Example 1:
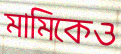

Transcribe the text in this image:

মামিকেও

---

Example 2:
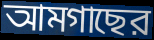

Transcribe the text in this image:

আমগাছের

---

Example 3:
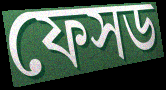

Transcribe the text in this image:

ফেসড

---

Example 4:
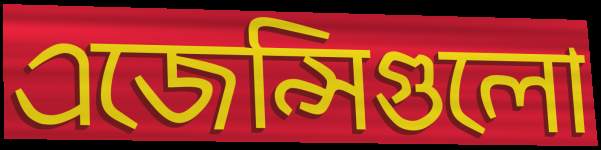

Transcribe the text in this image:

এজেন্সিগুলো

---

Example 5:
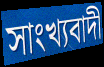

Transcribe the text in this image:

সাংখ্যবাদী